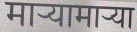
माऱ्यामाऱ्या